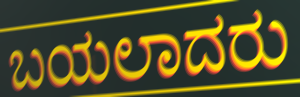
ಬಯಲಾದರು